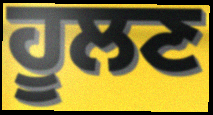
ਹੂਲਣ